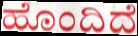
ಹೊಂದಿದೆ